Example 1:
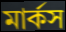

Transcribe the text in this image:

মার্কস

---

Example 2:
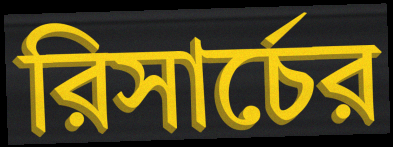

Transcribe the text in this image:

রিসার্চের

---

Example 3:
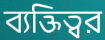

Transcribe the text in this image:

ব্যক্তিত্বর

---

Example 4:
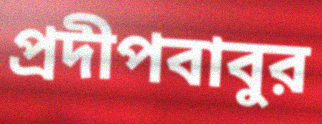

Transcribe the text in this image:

প্রদীপবাবুর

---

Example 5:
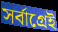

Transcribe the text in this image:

সর্বাগ্রেই